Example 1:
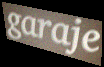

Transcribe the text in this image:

garaje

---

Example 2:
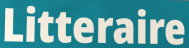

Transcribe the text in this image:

Litteraire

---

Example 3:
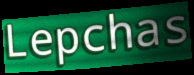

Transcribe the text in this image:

Lepchas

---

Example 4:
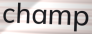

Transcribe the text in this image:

champ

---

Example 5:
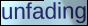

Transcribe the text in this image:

unfading